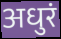
अधुरं